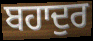
ਬਹਾਦੁਰ